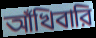
আঁখিবারি